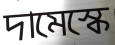
দামেস্কে